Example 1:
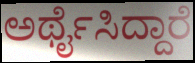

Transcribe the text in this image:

ಅರ್ಥೈಸಿದ್ದಾರೆ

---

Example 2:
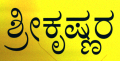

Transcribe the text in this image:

ಶ್ರೀಕೃಷ್ಣರ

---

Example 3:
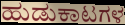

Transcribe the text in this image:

ಹುಡುಕಾಟಗಳ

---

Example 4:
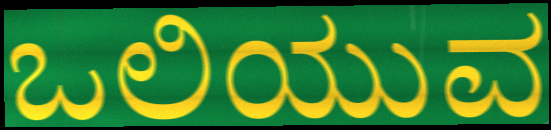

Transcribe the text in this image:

ಒಲಿಯುವ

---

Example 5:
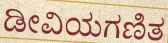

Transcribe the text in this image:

ಡೀವಿಯಗಣಿತ